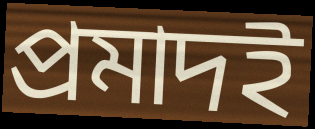
প্রমাদই